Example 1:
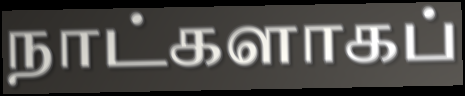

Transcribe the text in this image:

நாட்களாகப்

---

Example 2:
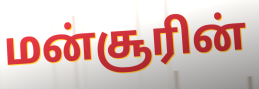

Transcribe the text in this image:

மன்சூரின்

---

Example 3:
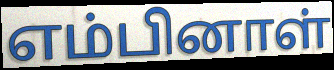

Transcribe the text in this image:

எம்பினாள்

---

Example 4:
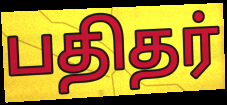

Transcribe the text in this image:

பதிதர்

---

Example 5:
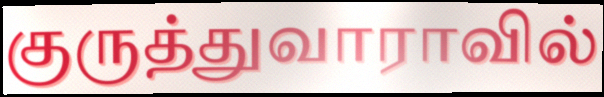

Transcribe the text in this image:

குருத்துவாராவில்